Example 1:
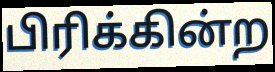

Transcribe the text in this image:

பிரிக்கின்ற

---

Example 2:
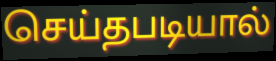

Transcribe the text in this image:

செய்தபடியால்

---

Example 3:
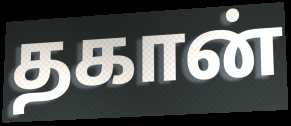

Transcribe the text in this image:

தகான்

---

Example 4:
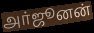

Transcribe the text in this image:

அர்ஜூனன்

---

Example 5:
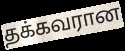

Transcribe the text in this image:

தக்கவரான